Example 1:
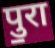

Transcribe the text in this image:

पु॒रा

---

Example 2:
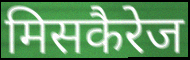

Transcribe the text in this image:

मिसकैरेज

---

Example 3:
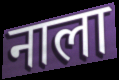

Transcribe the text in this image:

नाला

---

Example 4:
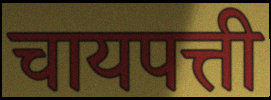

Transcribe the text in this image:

चायपत्ती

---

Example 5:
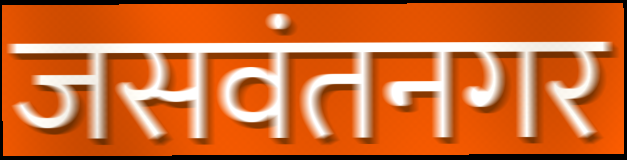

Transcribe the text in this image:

जसवंतनगर